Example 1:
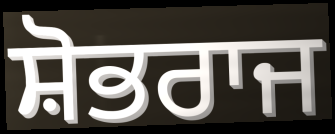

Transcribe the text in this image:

ਸ਼ੋਭਰਾਜ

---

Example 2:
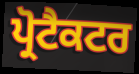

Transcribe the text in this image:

ਪ੍ਰੋਟੈਕਟਰ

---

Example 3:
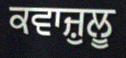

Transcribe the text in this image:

ਕਵਾਜ਼ੁਲੂ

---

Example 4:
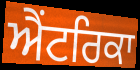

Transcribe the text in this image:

ਐਂਟਰਿਕਾ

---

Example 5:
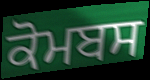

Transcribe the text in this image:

ਕੋਮਬਸ